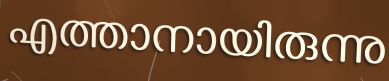
എത്താനായിരുന്നു